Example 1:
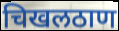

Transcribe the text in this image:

चिखलठाण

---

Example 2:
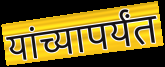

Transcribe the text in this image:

यांच्यापर्यंत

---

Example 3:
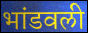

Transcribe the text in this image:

भांडवली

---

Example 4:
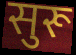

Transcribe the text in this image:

सुरू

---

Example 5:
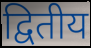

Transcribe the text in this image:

द्वितीय